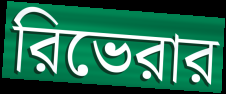
রিভেরার